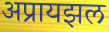
अप्रायझल